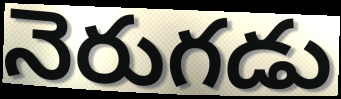
నెరుగడు